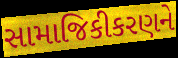
સામાજિકીકરણને